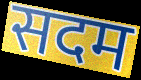
सदम